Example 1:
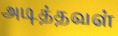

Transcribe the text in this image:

அடித்தவள்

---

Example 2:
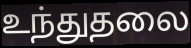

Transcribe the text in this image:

உந்துதலை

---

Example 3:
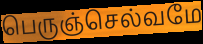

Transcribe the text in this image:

பெருஞ்செல்வமே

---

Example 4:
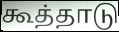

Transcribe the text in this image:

கூத்தாடு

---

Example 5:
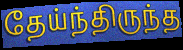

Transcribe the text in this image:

தேய்ந்திருந்த